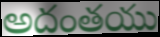
అదంతయు